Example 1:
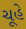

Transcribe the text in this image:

ચૂહે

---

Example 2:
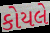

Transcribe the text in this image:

કોયલે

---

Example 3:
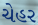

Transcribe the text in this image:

ચેહર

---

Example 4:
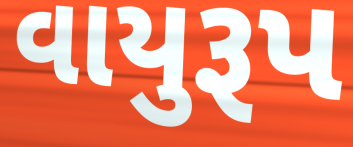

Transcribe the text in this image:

વાયુરૂપ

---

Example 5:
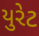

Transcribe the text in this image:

યુરેટ